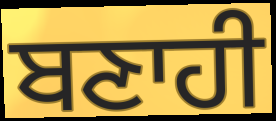
ਬਣਾਹੀ